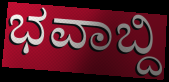
ಭವಾಬ್ದಿ